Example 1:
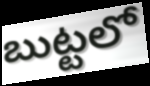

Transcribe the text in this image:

బుట్టలో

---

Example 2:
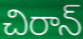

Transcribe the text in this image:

చిరాన్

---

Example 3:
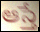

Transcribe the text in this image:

ఆస్తే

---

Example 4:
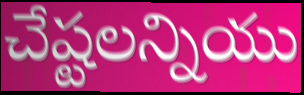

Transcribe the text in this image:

చేష్టలన్నియు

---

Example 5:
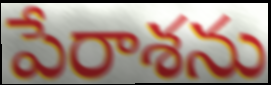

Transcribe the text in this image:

పేరాశను